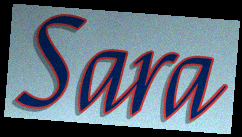
Sara